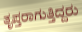
ತೃಪ್ತರಾಗುತ್ತಿದ್ದರು